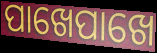
ପାଖେପାଖେ